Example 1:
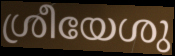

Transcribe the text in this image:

ശ്രീയേശു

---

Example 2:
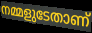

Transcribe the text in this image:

നമ്മളുടേതാണ്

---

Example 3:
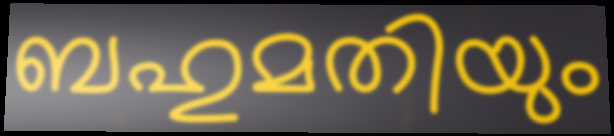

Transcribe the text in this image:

ബഹുമതിയും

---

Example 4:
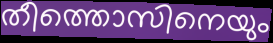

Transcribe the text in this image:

തീത്തൊസിനെയും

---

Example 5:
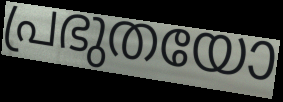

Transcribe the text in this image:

പ്രഭുതയോ